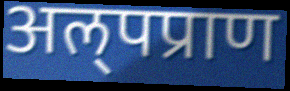
अल्पप्राण